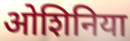
ओशिनिया